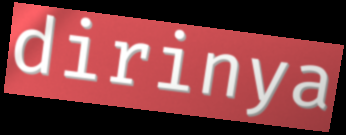
dirinya